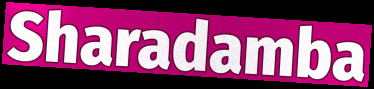
Sharadamba